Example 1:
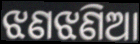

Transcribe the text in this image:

ଝଣଝଣିଆ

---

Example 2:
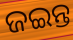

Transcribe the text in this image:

ଜଇନ୍ତ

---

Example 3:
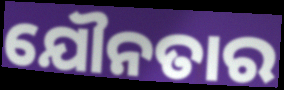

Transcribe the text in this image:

ଯୌନତାର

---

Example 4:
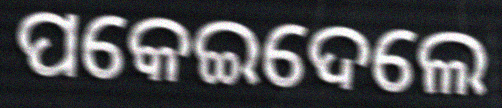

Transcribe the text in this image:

ପକେଇଦେଲେ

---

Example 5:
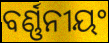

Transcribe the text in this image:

ବର୍ଣ୍ଣନୀୟଂ